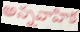
అన్నవాహిక